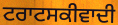
ਟਰਾਟਸਕੀਵਾਦੀ